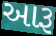
આરૂ